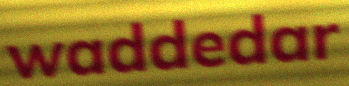
waddedar